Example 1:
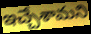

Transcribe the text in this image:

ఇచ్చేశామని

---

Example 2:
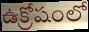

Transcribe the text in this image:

ఉక్రోషంలో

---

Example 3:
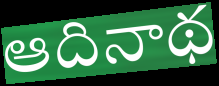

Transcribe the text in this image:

ఆదినాథ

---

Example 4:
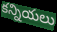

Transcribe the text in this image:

కన్నియలు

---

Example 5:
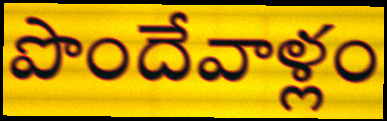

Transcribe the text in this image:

పొందేవాళ్లం